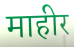
माहीर